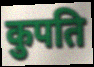
कुपति